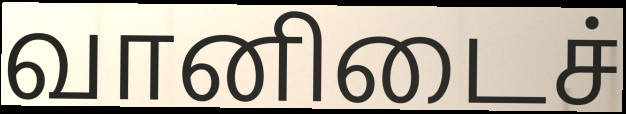
வானிடைச்